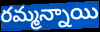
రమ్మన్నాయి